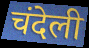
चंदेली